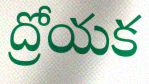
ద్రోయక